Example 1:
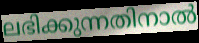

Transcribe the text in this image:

ലഭിക്കുന്നതിനാൽ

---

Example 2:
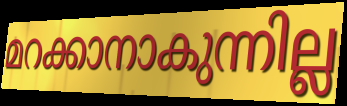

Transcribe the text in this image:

മറക്കാനാകുന്നില്ല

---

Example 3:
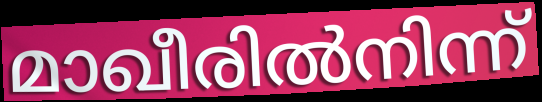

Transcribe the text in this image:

മാഖീരിൽനിന്ന്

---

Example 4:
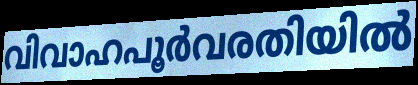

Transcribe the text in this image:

വിവാഹപൂർവരതിയിൽ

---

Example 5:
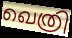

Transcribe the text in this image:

ഖെത്രി